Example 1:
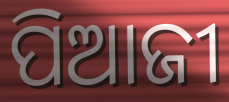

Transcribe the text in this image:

ପିଆଜୀ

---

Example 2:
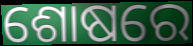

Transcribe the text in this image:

ଶୋଷରେ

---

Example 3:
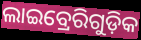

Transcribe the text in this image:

ଲାଇବ୍ରେରିଗୁଡ଼ିକ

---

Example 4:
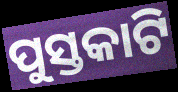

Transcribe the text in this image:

ପୁସ୍ତକାଟି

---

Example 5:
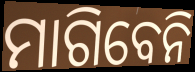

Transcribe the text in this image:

ମାଗିବେନି